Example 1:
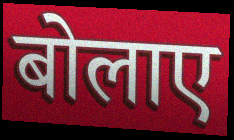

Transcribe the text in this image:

बोलाए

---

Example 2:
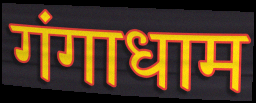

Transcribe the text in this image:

गंगाधाम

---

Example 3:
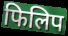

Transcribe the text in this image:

फिलिप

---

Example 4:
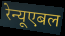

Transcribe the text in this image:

रेन्यूएबल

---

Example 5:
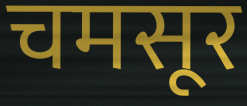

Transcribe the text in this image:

चमसूर